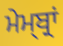
ਮੇਮ੍ਬ੍ਰਾਂ